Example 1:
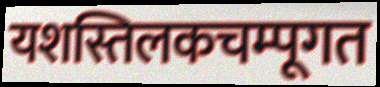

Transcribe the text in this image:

यशस्तिलकचम्पूगत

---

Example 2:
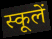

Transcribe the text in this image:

स्कूलें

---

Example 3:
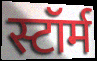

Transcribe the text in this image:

स्टॉर्म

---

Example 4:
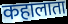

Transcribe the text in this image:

कहालाता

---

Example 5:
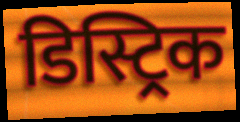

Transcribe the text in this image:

डिस्ट्रिक